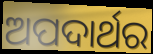
ଅପଦାର୍ଥର